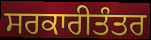
ਸਰਕਾਰੀਤੰਤਰ